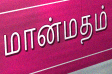
மான்மதம்